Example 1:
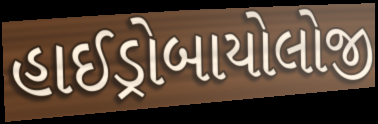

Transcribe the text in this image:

હાઈડ્રોબાયોલોજી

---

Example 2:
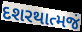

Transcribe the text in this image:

દશરથાત્મજં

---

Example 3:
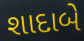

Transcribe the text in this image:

શાદાબે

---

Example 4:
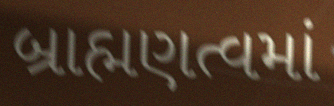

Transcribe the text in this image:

બ્રાહ્મણત્વમાં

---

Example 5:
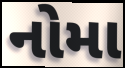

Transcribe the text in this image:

નોમા